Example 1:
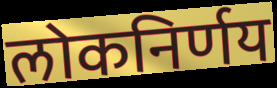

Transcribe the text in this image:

लोकनिर्णय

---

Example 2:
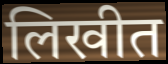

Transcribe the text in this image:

लिखीत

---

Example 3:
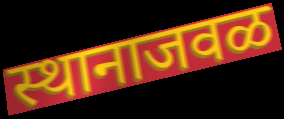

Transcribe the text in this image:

स्थानाजवळ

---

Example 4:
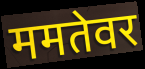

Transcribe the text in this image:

ममतेवर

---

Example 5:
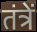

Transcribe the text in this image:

तंत्रें